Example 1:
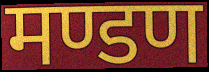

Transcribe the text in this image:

मण्डण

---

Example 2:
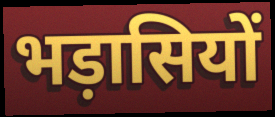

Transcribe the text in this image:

भड़ासियों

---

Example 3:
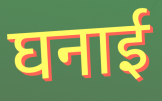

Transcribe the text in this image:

घनाई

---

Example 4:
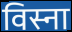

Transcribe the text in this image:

विस्ना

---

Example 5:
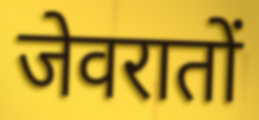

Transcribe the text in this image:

जेवरातों